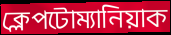
ক্লেপটোম্যানিয়াক